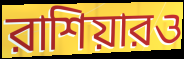
রাশিয়ারও